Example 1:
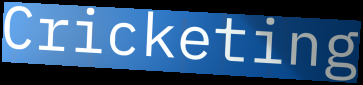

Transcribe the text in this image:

Cricketing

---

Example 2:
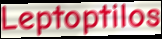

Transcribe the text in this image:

Leptoptilos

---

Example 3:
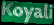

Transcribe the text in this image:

Koyali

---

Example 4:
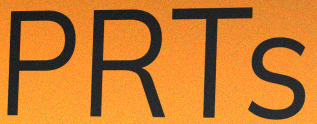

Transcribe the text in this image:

PRTs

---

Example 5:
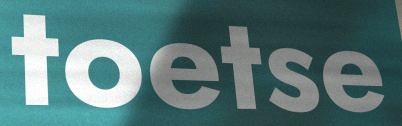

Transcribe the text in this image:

toetse